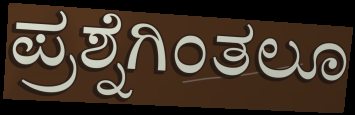
ಪ್ರಶ್ನೆಗಿಂತಲೂ